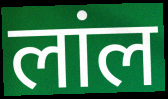
लांल